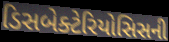
ડિસબેક્ટેરિયોસિસની